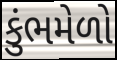
કુંભમેળો